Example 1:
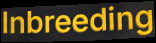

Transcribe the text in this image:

Inbreeding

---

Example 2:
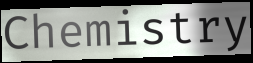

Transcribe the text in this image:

Chemistry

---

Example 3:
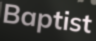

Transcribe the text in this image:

Baptist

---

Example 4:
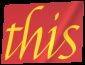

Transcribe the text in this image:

this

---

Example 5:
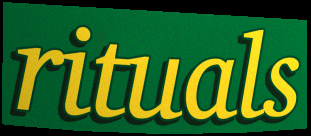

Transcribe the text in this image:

rituals